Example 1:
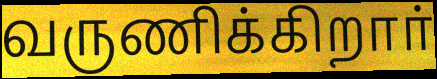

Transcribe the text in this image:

வருணிக்கிறார்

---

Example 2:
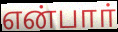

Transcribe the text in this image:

என்பார்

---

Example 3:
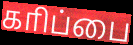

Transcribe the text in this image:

கரிப்பை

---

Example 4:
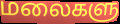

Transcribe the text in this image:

மலைகளு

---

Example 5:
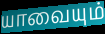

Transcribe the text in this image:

யாவையும்